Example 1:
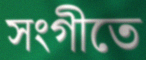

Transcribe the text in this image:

সংগীতে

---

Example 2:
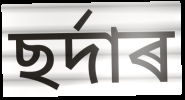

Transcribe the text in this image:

ছৰ্দাৰ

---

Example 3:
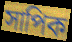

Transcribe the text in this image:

সাপিক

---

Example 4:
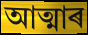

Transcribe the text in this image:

আত্মাৰ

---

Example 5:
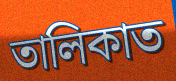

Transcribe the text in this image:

তালিকাত